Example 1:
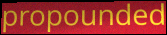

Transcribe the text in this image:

propounded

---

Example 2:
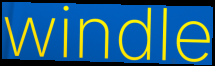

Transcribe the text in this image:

windle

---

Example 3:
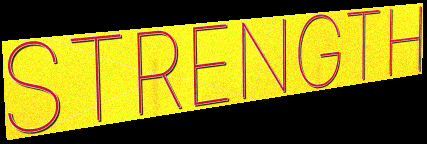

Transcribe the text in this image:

STRENGTH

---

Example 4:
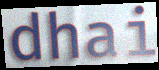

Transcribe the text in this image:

dhai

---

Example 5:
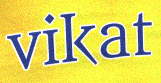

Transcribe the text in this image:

vikat